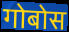
गोबोस